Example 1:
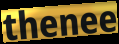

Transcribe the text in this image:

thenee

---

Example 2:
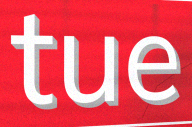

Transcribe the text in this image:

tue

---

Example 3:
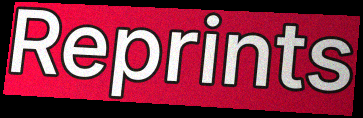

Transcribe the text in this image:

Reprints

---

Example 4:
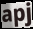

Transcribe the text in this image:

apj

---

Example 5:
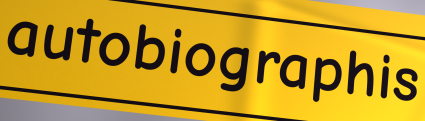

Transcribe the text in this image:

autobiographis